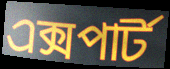
এক্সপার্ট